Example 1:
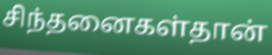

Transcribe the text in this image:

சிந்தனைகள்தான்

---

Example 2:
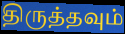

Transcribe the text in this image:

திருத்தவும்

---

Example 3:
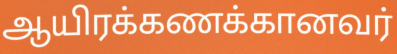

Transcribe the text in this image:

ஆயிரக்கணக்கானவர்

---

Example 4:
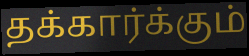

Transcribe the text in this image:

தக்கார்க்கும்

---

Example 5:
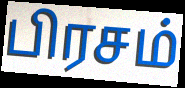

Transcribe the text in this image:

பிரசம்